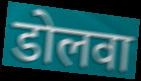
डोलवा